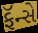
ફૅન્સે